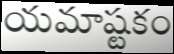
యమాష్టకం